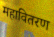
महावितरण